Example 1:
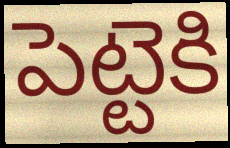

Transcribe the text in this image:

పెట్టెకి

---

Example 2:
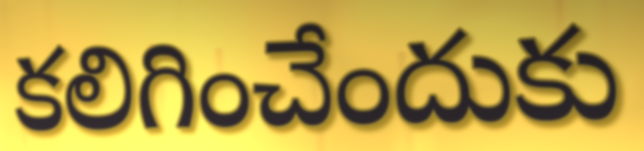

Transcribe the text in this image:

కలిగించేందుకు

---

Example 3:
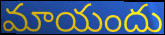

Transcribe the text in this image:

మాయందు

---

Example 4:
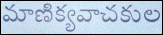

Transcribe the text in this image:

మాణిక్యవాచకుల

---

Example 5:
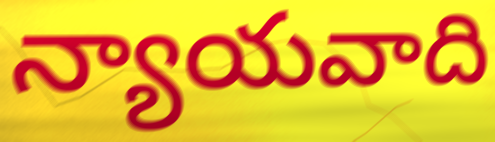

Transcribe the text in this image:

న్యాయవాది